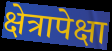
क्षेत्रापेक्षा